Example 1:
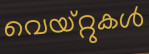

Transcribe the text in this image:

വെയ്റ്റുകൾ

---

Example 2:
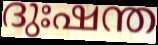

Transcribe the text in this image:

ദുഃഷന്ത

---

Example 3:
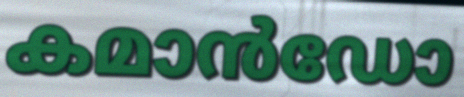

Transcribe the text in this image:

കമാൻഡോ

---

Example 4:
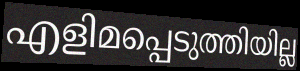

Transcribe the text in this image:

എളിമപ്പെടുത്തിയില്ല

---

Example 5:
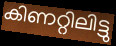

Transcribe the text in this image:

കിണറ്റിലിട്ടു